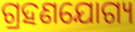
ଗ୍ରହଣଯୋଗ୍ୟ